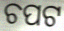
ଚପଟ